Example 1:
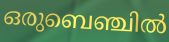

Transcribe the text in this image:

ഒരുബെഞ്ചിൽ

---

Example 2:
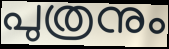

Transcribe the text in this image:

പുത്രനും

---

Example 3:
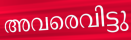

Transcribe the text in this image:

അവരെവിട്ടു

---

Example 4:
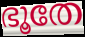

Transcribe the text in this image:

ഭൂതേ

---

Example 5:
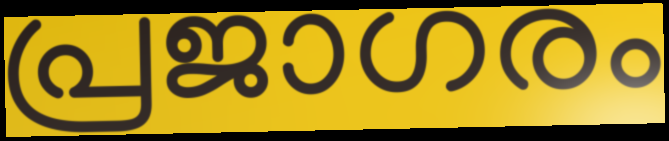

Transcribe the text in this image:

പ്രജാഗരം